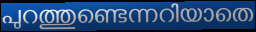
പുറത്തുണ്ടെന്നറിയാതെ